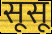
सूसू